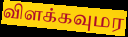
விளக்கவுமர